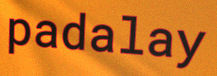
padalay